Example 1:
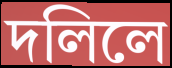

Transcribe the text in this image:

দলিলে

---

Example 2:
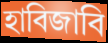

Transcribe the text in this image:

হাবিজাবি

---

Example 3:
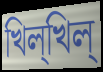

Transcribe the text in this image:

খিল্খিল্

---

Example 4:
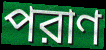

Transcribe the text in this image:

পরাণ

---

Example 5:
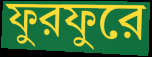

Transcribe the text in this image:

ফুরফুরে